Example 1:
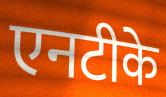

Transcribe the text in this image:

एनटीके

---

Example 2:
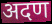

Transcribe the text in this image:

अदण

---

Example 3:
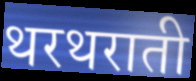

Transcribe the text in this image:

थरथराती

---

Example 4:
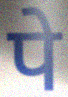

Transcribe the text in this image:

पे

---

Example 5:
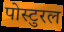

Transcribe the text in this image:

पोस्टुरल